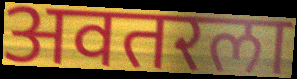
अवतरला